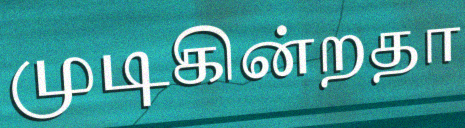
முடிகின்றதா